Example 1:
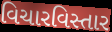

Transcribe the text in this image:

વિચારવિસ્તાર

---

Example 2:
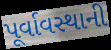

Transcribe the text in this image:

પૂર્વાવસ્થાની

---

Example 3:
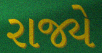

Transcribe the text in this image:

રાજ્યે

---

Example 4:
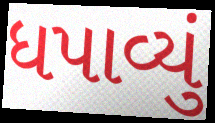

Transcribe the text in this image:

ધપાવ્યું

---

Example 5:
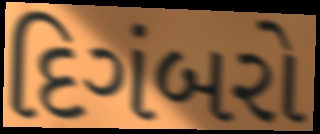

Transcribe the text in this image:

દિગંબરો